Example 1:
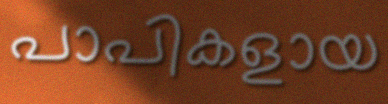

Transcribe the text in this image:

പാപികളായ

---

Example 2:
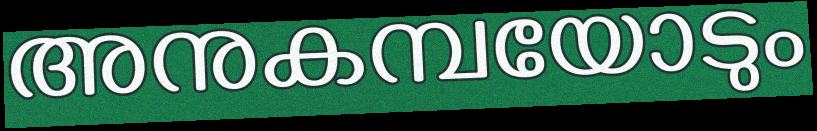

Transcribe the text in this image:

അനുകമ്പയോടും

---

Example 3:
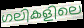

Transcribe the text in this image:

ഗലികളിലെ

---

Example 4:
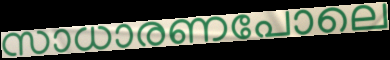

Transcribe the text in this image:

സാധാരണപോലെ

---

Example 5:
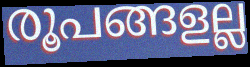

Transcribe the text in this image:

രൂപങ്ങളല്ല